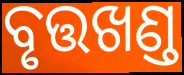
ବୃତ୍ତଖଣ୍ଡ